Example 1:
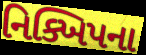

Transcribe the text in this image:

નિક્ખિપના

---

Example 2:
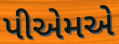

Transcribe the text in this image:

પીએમએ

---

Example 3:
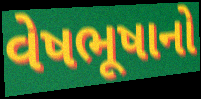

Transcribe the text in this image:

વેષભૂષાનો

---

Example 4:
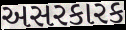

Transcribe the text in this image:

અસરકારક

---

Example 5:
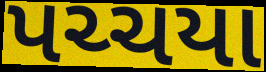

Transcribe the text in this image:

પચ્ચયા